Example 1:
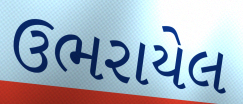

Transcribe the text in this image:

ઉભરાયેલ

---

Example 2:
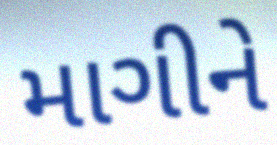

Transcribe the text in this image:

માગીને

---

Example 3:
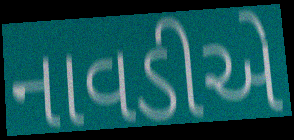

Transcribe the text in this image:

નાવડીએ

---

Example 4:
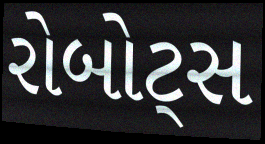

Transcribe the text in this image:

રોબોટ્સ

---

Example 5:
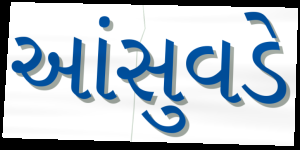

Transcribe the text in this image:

આંસુવડે